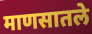
माणसातले